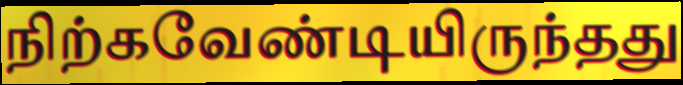
நிற்கவேண்டியிருந்தது